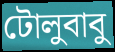
টোলুবাবু